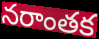
నరాంతక